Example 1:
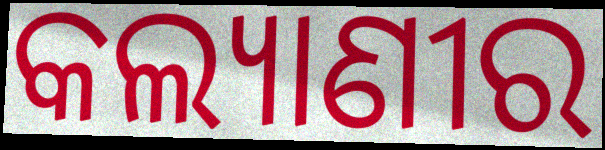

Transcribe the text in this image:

କଲ୍ୟାଣୀର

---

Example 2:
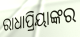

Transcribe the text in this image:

ରାଧାପ୍ରିୟାଙ୍କର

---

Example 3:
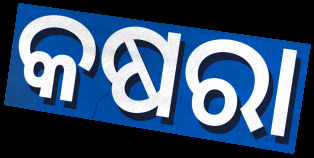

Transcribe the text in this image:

କଷରା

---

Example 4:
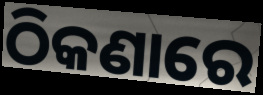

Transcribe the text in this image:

ଠିକଣାରେ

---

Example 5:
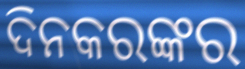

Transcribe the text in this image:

ଦିନକରଙ୍କର